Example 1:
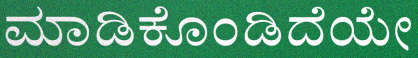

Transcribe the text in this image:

ಮಾಡಿಕೊಂಡಿದೆಯೇ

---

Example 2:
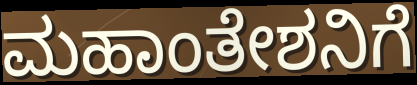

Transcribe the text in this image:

ಮಹಾಂತೇಶನಿಗೆ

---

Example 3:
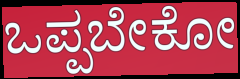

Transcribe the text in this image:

ಒಪ್ಪಬೇಕೋ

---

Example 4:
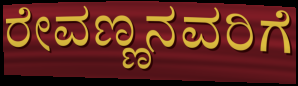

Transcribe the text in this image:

ರೇವಣ್ಣನವರಿಗೆ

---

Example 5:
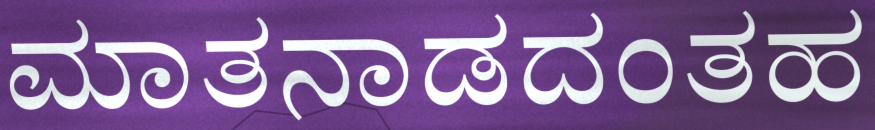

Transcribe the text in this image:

ಮಾತನಾಡದಂತಹ